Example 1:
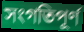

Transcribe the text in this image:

সংগতিপূর্ণ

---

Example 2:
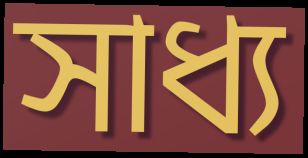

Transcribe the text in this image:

সাধ্য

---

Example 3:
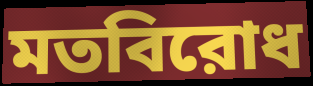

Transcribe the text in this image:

মতবিরোধ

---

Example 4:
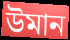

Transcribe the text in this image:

উমান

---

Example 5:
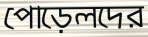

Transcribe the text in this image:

পোড়েলদের